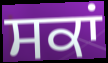
ਸਕਾਂ